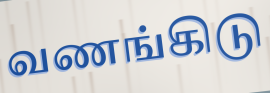
வணங்கிடு